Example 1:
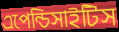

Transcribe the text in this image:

এপেন্ডিসাইটিস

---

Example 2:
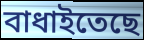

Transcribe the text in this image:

বাধাইতেছে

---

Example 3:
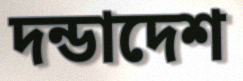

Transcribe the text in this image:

দন্ডাদেশ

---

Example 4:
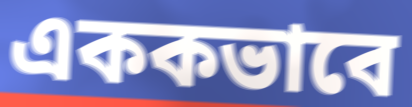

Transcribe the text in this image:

এককভাবে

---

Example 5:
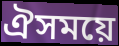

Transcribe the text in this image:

ঐসময়ে